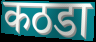
कठडा